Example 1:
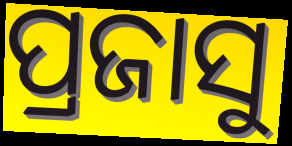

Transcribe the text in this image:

ପ୍ରଜାସୁ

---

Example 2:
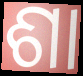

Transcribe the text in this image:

ଶା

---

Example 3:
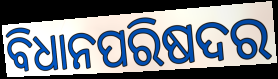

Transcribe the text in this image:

ବିଧାନପରିଷଦର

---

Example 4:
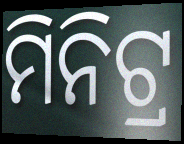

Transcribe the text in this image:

ମିନିଟ୍ର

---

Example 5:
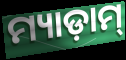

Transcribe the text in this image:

ମ୍ୟାଡ଼ାମ୍